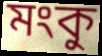
মংকু